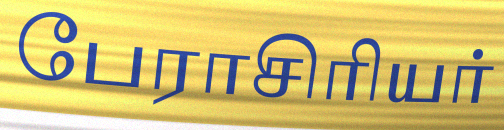
பேராசிரியர்